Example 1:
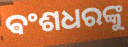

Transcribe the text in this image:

ଵଂଶଧରଙ୍କୁ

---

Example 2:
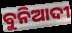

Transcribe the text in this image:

ବୁନିଆଦୀ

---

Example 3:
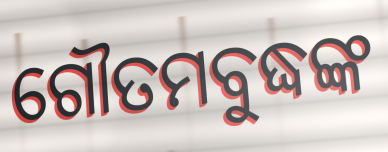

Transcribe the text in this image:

ଗୌତମବୁଦ୍ଧଙ୍କ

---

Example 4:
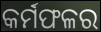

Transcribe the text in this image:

କର୍ମଫଳର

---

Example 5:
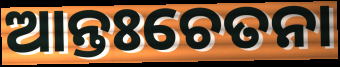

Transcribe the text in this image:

ଆନ୍ତଃଚେତନା